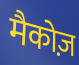
मैकोज़